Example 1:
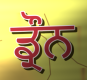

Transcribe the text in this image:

ਡ੍ਰੌਨ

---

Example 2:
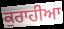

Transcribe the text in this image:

ਕੁਰਾਹੀਆ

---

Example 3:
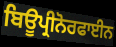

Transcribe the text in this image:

ਬਿਊਪ੍ਰੀਨੋਰਫਾਈਨ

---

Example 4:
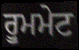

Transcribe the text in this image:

ਰੂਮਮੇਟ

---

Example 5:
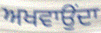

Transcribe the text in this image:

ਅਖਵਾਉਂਦਾ